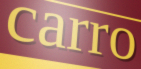
carro